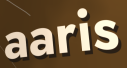
aaris